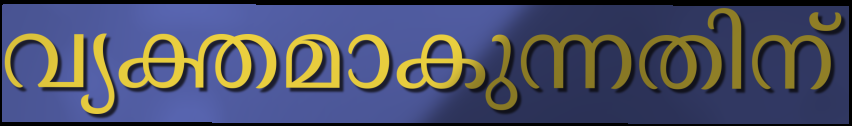
വ്യക്തമാകുന്നതിന്